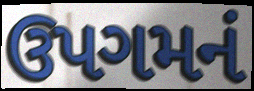
ઉપગમનં